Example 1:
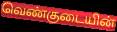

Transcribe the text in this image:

வெண்குடையின்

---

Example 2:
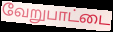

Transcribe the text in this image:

வேறுபாட்டை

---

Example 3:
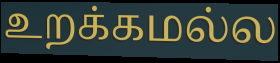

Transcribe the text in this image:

உறக்கமல்ல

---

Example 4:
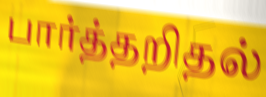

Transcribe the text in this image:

பார்த்தறிதல்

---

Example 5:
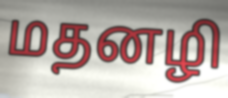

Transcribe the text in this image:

மதனழி